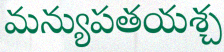
మన్యుపతయశ్చ